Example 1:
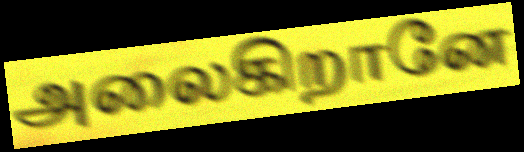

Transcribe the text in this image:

அலைகிறானே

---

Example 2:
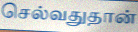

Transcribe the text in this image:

செல்வதுதான்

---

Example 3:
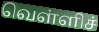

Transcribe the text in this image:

வெள்ளிச்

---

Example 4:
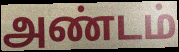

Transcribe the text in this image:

அண்டம்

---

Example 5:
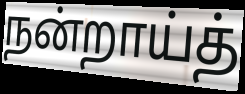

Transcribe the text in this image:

நன்றாய்த்